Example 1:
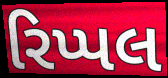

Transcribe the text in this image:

રિપ્પલ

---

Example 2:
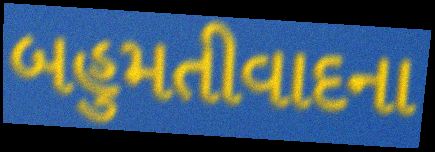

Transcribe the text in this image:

બહુમતીવાદના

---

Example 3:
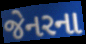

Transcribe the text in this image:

જેનરના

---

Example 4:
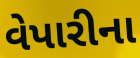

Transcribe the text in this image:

વેપારીના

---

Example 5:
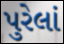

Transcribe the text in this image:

પુરેલાં